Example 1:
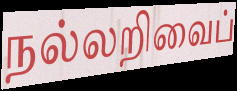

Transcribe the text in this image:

நல்லறிவைப்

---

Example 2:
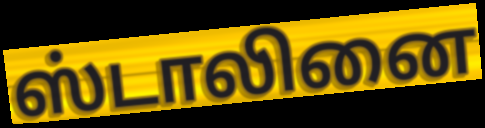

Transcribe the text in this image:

ஸ்டாலினை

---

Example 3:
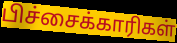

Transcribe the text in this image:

பிச்சைக்காரிகள்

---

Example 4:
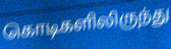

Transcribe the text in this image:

கொடிகளிலிருந்து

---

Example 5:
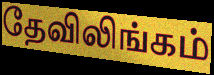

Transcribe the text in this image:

தேவிலிங்கம்